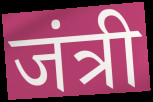
जंत्री